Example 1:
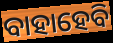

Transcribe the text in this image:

ବାହାହେବି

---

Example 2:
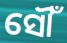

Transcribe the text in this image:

ସୌଁ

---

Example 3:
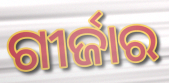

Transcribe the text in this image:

ଗୀର୍ଜାର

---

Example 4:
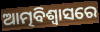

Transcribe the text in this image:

ଆତ୍ମବିଶ୍ଵାସରେ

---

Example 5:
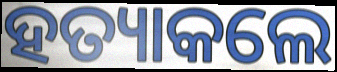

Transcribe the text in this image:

ହତ୍ୟାକଲେ